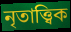
নৃতাত্ত্বিক